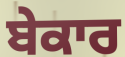
ਬੇਕਾਰ